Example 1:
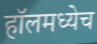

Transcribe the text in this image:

हॉलमध्येच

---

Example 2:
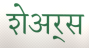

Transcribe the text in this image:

शेअर्स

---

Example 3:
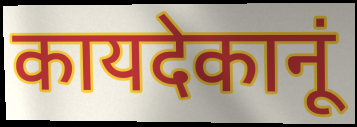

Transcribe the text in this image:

कायदेकानूं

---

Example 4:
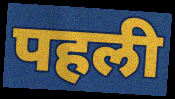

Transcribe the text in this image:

पहली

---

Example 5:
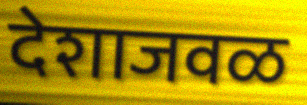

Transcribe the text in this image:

देशाजवळ